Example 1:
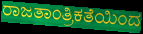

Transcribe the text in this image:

ರಾಜತಾಂತ್ರಿಕತೆಯಿಂದ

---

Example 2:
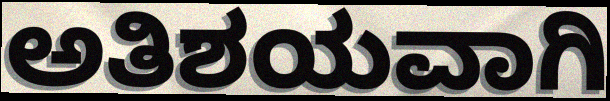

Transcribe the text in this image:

ಅತಿಶಯವಾಗಿ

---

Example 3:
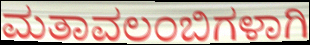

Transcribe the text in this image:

ಮತಾವಲಂಬಿಗಳಾಗಿ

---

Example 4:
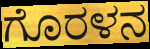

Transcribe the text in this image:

ಗೊರಳನ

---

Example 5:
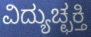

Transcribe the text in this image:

ವಿದ್ಯುಚ್ಛಕ್ತಿ